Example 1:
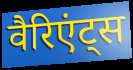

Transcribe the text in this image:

वैरिएंट्स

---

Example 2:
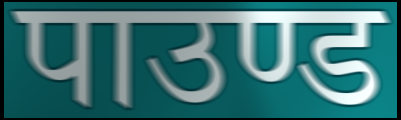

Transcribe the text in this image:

पाउण्‍ड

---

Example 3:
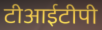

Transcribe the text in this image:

टीआईटीपी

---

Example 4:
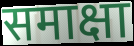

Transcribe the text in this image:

समाक्षा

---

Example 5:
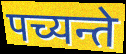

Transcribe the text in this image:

पच्यन्ते